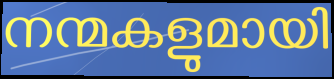
നന്മകളുമായി